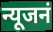
न्यूजनं